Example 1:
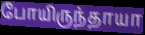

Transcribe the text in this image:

போயிருந்தாயா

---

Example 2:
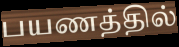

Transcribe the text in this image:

பயணத்தில்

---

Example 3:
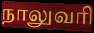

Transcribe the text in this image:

நாலுவரி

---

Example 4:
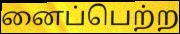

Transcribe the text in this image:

னைப்பெற்ற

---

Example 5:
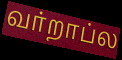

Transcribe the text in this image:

வர்றாப்ல